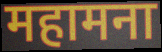
महामना